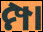
ମ୍ପା